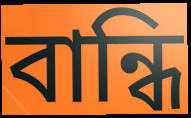
বান্ধি